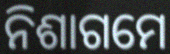
ନିଶାଗମେ